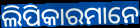
ଲିପିକାରମାନେ